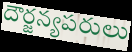
దౌర్జన్యపరులు